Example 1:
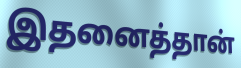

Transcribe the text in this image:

இதனைத்தான்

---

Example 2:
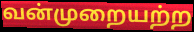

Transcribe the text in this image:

வன்முறையற்ற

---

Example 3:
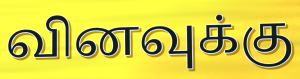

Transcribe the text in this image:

வினவுக்கு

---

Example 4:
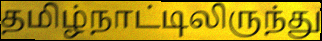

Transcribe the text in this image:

தமிழ்நாட்டிலிருந்து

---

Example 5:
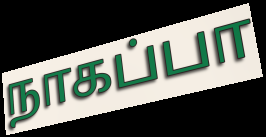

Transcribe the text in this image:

நாகப்பா